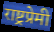
राष्ट्रप्रेमी